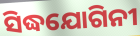
ସିଦ୍ଧଯୋଗିନୀ